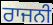
ਰਾਜਨੀ